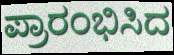
ಪ್ರಾರಂಭಿಸಿದ